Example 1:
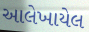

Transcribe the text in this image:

આલેખાયેલ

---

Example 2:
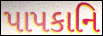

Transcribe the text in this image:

પાપકાનિ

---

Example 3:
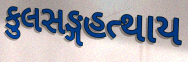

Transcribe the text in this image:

કુલસઙ્ગહત્થાય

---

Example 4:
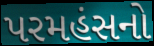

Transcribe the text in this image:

પરમહંસનો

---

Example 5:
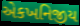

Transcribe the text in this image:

એકખનિજીય